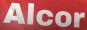
Alcor